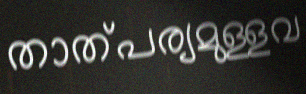
താത്പര്യമുള്ളവ